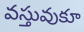
వస్తువుకూ